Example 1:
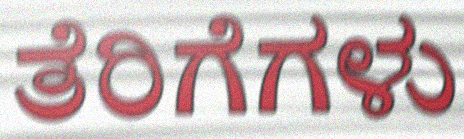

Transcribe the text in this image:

ತೆರಿಗೆಗಳು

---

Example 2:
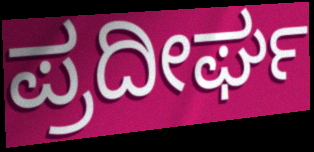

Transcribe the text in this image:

ಪ್ರದೀರ್ಘ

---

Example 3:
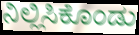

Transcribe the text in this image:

ನಿಲ್ಲಿಸಿಕೊಂಡು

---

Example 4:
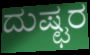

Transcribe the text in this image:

ದುಷ್ಟರ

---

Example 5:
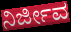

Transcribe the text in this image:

ನಿರ್ಜೀವ